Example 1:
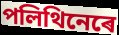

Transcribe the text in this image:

পলিথিনেৰে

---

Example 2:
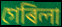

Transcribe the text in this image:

গেৰিলা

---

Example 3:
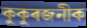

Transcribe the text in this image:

কুকুৰজনীক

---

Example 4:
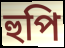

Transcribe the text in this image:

হুপি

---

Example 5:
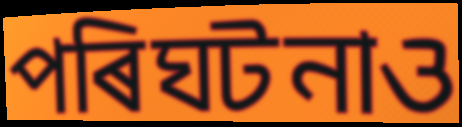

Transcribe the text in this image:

পৰিঘটনাও